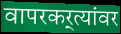
वापरकर्त्यांवर